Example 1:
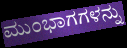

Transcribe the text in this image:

ಮುಂಭಾಗಗಳನ್ನು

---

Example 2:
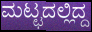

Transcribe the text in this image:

ಮಟ್ಟದಲ್ಲಿದ್ದ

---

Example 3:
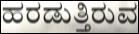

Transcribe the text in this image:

ಹರಡುತ್ತಿರುವ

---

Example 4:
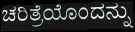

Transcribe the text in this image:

ಚರಿತ್ರೆಯೊಂದನ್ನು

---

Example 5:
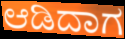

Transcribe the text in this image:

ಆಡಿದಾಗ